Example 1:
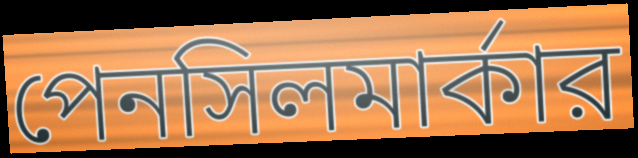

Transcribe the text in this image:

পেনসিলমার্কার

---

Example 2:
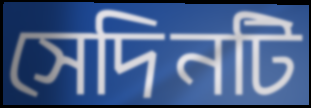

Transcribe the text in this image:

সেদিনটি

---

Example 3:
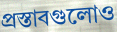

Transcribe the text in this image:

প্রস্তাবগুলোও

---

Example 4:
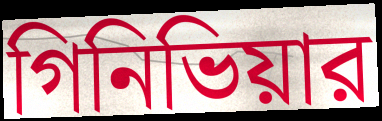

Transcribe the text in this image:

গিনিভিয়ার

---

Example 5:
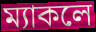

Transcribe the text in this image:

ম্যাকলে